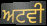
ਅਟਵੀ